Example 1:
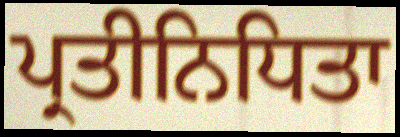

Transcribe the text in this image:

ਪ੍ਰਤੀਨਿਧਿਤਾ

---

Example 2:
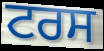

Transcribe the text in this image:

ਟਰਸ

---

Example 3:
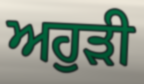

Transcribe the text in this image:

ਅਹੁੜੀ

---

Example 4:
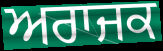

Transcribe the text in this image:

ਅਰਾਜਕ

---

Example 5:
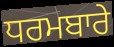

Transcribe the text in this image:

ਧਰਮਬਾਰੇ